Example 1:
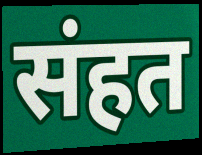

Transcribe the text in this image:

संहत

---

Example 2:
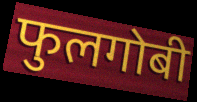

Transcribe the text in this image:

फुलगोबी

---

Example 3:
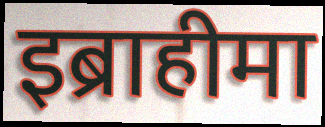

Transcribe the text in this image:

इब्राहीमा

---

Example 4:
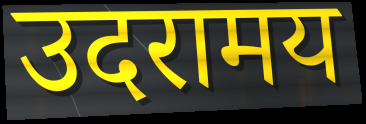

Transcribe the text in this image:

उदरामय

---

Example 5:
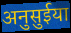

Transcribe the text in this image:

अनुसुईया